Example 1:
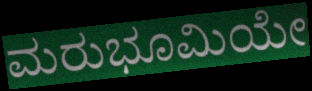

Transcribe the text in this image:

ಮರುಭೂಮಿಯೇ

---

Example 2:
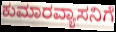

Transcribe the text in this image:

ಕುಮಾರವ್ಯಾಸನಿಗೆ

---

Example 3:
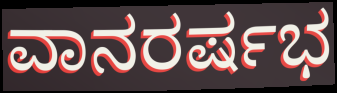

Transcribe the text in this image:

ವಾನರರ್ಷಭ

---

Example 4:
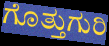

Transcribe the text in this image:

ಗೊತ್ತುಗುರಿ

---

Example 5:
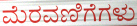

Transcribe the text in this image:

ಮೆರವಣಿಗೆಗಳು